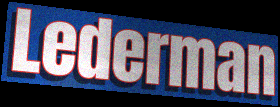
Lederman